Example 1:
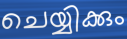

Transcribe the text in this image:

ചെയ്യിക്കും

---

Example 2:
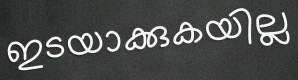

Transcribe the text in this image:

ഇടയാക്കുകയില്ല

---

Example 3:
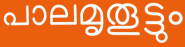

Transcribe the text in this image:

പാലമൃതൂട്ടും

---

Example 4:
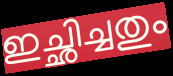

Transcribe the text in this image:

ഇച്ഛിച്ചതും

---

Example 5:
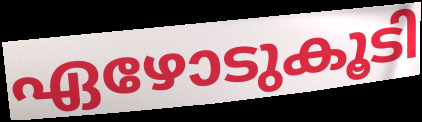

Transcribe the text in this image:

ഏഴോടുകൂടി